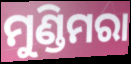
ମୁଣ୍ଡିମରା